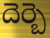
దెర్బె